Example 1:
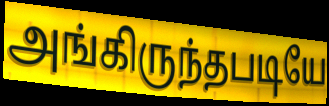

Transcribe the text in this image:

அங்கிருந்தபடியே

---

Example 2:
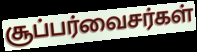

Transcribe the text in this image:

சூப்பர்வைசர்கள்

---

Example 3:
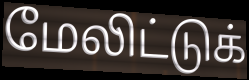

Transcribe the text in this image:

மேலிட்டுக்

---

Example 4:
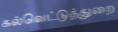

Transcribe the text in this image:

கல்வெட்டுத்துறை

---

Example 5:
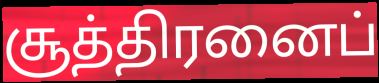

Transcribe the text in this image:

சூத்திரனைப்